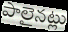
పాలైనట్లు